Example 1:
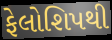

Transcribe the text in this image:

ફેલોશિપથી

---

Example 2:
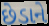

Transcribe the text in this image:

છેડાને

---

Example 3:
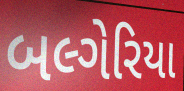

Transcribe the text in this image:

બલ્ગેરિયા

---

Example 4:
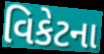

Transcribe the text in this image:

વિકેટના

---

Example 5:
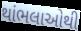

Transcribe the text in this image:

થાંભલાઓથી